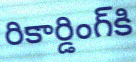
రికార్డింగ్‌కి